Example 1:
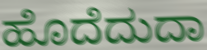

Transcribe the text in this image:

ಹೊದೆದುದಾ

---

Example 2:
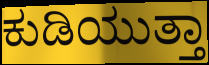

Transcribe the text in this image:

ಕುಡಿಯುತ್ತಾ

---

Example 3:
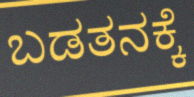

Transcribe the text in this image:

ಬಡತನಕ್ಕೆ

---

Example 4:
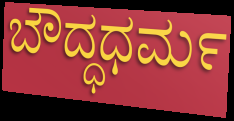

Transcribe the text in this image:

ಬೌದ್ಧಧರ್ಮ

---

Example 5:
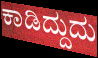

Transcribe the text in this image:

ಕಾಡಿದ್ದುದು